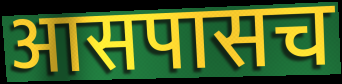
आसपासच